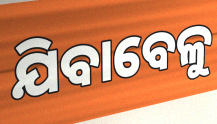
ଯିବାବେଳୁ